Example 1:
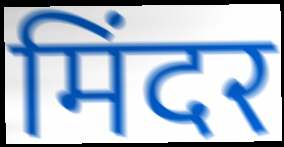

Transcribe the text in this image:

मिंदर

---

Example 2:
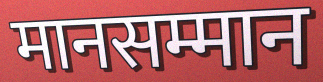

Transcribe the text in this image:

मानसम्मान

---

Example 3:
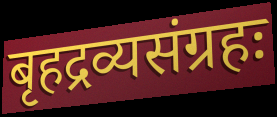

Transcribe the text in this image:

बृहद्रव्यसंग्रहः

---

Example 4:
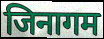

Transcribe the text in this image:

जिनागम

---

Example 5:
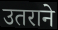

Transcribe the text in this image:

उतराने